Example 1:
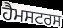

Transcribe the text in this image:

ਹੈਮਸਟਰਸ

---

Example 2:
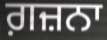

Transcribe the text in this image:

ਗ਼ਜ਼ਨਾ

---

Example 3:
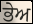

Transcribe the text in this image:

ਭੇਅ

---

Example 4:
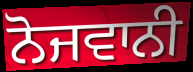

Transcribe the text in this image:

ਨੋਜਵਾਨੀ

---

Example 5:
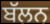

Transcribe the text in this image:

ਬੱਲਨ